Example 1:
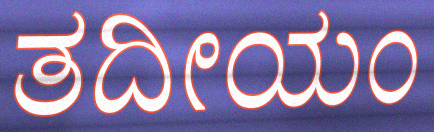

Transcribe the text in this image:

ತದೀಯಂ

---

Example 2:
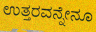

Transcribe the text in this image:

ಉತ್ತರವನ್ನೇನೂ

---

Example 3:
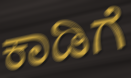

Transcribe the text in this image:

ಕಾಡಿಗೆ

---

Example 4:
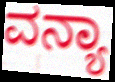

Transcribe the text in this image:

ವನ್ಯಾ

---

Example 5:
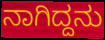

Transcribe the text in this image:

ನಾಗಿದ್ದನು